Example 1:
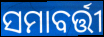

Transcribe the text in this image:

ସମାବର୍ତ୍ତୀ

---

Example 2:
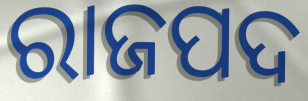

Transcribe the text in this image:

ରାଜପଦ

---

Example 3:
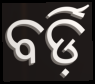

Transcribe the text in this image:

ବର୍ଡ଼ି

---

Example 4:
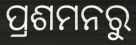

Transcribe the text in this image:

ପ୍ରଶମନରୁ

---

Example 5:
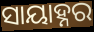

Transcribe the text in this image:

ସାୟାହ୍ନର